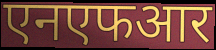
एनएफआर